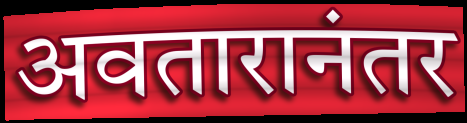
अवतारानंतर